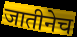
जातीनेच